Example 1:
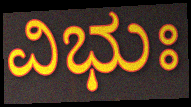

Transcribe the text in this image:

ವಿಭುಃ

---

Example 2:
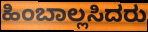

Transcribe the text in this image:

ಹಿಂಬಾಲ್ಲಸಿದರು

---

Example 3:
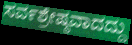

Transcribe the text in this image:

ಸರ್ವಶ್ರೇಷ್ಠವಾದದ್ದು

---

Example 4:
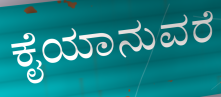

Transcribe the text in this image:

ಕೈಯಾನುವರೆ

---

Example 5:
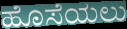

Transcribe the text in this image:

ಹೊಸೆಯಲು